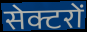
सेक्टरों